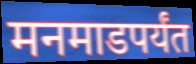
मनमाडपर्यंत